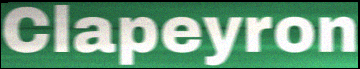
Clapeyron